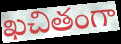
ఖచితంగా